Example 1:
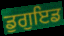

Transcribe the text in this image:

ਡੁਗੁਇਡ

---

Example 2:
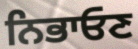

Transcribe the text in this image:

ਨਿਭਾਓਣ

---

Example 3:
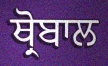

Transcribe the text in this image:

ਥ੍ਰੋਬਾਲ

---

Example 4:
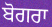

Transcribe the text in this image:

ਬੋਗਰਾ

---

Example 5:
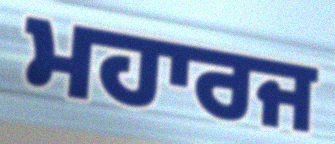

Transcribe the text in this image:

ਮਹਾਰਜ